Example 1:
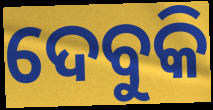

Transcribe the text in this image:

ଦେବୁକି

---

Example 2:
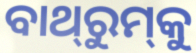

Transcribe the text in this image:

ବାଥ୍‌ରୁମ୍‌କୁ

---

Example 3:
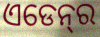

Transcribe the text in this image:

ଏଡେନ୍‍ର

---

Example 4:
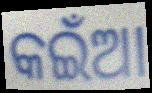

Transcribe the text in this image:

କଇଁଆ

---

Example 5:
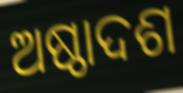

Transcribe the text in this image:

ଅଷ୍ଠାଦଶ